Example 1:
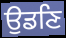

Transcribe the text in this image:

ਉਡਣਿ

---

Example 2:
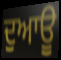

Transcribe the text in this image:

ਦੁਆਊ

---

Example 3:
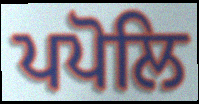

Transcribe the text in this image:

ਪਪੋਲਿ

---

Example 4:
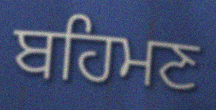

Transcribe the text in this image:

ਬਹਿਮਣ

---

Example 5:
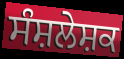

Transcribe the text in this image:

ਸੰਸ਼ਲੇਸ਼ਕ